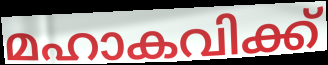
മഹാകവിക്ക്